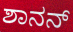
ಶಾನನ್